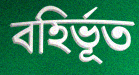
বহির্ভূত